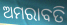
ଅମରାବତି